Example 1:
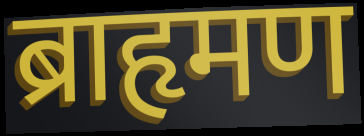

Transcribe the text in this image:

ब्राहृमण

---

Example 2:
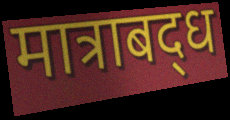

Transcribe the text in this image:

मात्राबद्ध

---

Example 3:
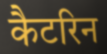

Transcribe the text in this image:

कैटरिन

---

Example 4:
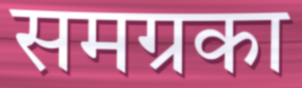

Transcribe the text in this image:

समग्रका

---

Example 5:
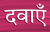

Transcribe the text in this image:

दवाएँ